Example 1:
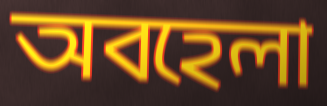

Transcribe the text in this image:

অবহেলা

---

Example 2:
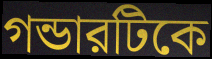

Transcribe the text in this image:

গন্ডারটিকে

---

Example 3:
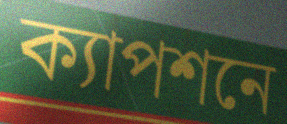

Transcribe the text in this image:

ক্যাপশনে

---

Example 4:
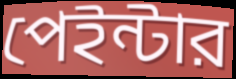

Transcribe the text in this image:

পেইন্টার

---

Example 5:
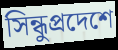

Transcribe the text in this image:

সিন্ধুপ্রদেশে